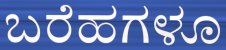
ಬರೆಹಗಳೂ